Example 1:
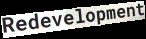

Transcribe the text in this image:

Redevelopment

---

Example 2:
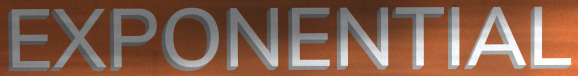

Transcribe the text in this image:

EXPONENTIAL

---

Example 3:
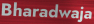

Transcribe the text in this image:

Bharadwaja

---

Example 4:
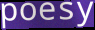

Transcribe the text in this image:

poesy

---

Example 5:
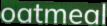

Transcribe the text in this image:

oatmeal